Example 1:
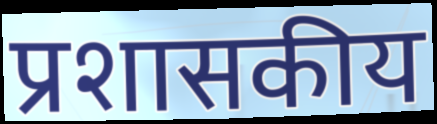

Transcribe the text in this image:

प्रशासकीय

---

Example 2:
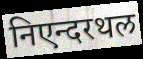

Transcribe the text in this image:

निएन्दरथल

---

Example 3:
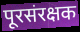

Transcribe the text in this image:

पूरसंरक्षक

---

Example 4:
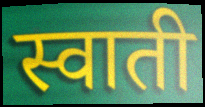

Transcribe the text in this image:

स्वाती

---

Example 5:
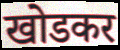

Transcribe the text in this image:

खोडकर